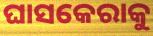
ଘାସକେରାକୁ